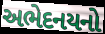
અભેદનયનો